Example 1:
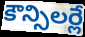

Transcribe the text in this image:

కౌన్సిలర్లే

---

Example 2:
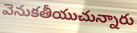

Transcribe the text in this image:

వెనుకతీయుచున్నారు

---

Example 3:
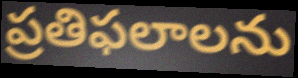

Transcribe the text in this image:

ప్రతిఫలాలను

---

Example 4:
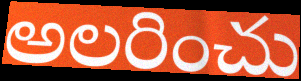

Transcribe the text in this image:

అలరించు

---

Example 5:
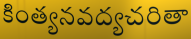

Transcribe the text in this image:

కింత్యనవద్యచరితా